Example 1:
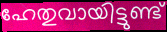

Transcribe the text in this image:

ഹേതുവായിട്ടുണ്ട്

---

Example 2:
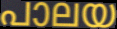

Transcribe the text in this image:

പാലയ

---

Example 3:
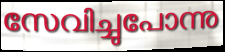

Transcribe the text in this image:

സേവിച്ചുപോന്നു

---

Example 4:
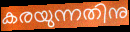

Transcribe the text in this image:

കരയുന്നതിനു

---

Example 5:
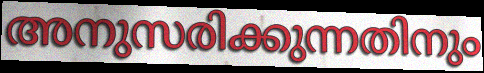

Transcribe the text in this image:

അനുസരിക്കുന്നതിനും